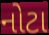
નોટા